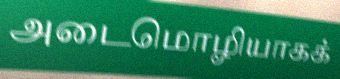
அடைமொழியாகக்